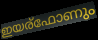
ഇയര്ഫോണും